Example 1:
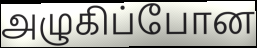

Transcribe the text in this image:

அழுகிப்போன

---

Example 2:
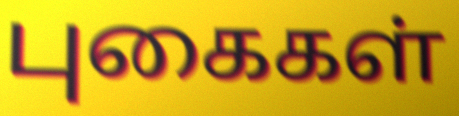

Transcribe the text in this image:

புகைகள்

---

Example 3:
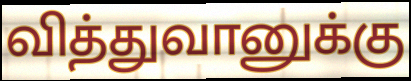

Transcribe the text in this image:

வித்துவானுக்கு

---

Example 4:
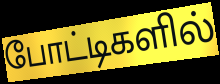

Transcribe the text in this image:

போட்டிகளில்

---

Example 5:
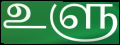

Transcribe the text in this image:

உளு